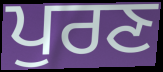
ਪੁਰਣ